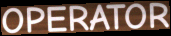
OPERATOR